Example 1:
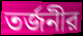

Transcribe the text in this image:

তর্জনীর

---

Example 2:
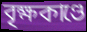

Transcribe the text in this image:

বৃক্ষকাণ্ডে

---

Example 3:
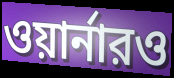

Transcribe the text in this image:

ওয়ার্নারও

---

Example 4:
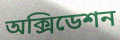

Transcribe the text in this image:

অক্সিডেশন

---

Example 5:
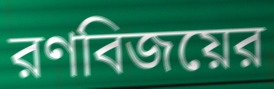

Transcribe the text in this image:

রণবিজয়ের